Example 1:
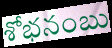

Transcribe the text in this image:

శోభనంబు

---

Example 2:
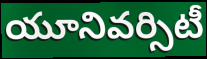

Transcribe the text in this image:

యూనివర్సిటీ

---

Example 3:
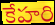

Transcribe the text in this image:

కేహరి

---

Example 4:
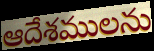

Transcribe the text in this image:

ఆదేశములను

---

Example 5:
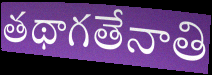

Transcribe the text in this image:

తథాగతేనాతి